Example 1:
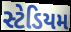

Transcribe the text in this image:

સ્ટેડિયમ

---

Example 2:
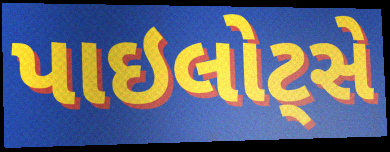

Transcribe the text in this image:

પાઇલોટ્સે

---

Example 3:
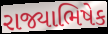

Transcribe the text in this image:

રાજ્યાભિષેક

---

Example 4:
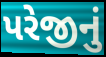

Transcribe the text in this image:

પરેજીનું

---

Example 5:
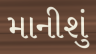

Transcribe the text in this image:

માનીશું